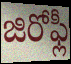
జిరోఫ్లీ